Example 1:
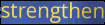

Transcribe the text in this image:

strengthen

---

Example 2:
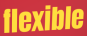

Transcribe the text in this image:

flexible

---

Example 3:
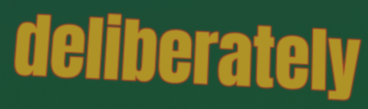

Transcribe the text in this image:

deliberately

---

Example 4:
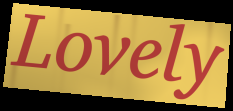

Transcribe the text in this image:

Lovely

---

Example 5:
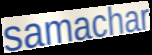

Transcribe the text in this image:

samachar